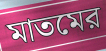
মাতমের